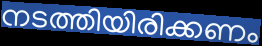
നടത്തിയിരിക്കണം